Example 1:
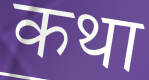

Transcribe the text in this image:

कथा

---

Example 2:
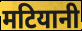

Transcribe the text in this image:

मटियानी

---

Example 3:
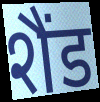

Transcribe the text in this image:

शैंड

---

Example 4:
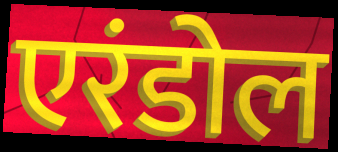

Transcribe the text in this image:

एरंडोल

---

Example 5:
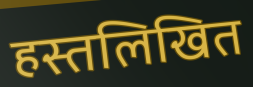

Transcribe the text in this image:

हस्तलिखित